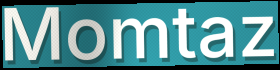
Momtaz